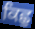
ਕਿਛੁ